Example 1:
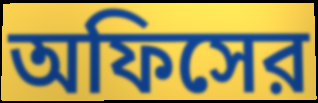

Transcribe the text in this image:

অফিসের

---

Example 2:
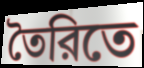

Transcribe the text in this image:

তৈরিতে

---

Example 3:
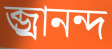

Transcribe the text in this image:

ব্জ্রানন্দ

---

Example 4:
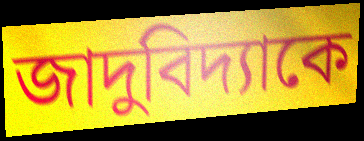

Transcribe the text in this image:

জাদুবিদ্যাকে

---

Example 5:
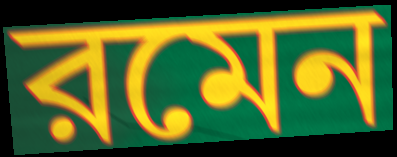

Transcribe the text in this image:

রমেন